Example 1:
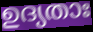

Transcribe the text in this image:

ഉദ്യതാഃ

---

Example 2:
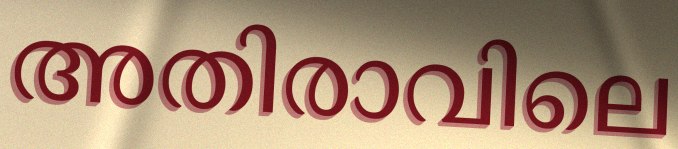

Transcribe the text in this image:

അതിരാവിലെ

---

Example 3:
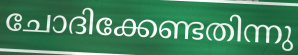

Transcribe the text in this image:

ചോദിക്കേണ്ടതിന്നു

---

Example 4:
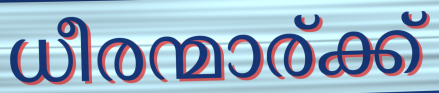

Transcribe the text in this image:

ധീരന്മാര്ക്ക്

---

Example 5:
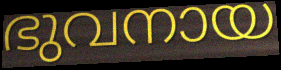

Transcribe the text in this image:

ഭുവനായ